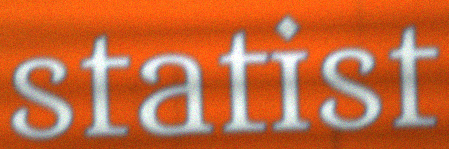
statist